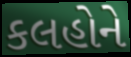
કલહોને